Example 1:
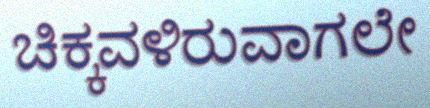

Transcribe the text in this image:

ಚಿಕ್ಕವಳಿರುವಾಗಲೇ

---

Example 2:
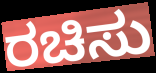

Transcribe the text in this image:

ರಚಿಸು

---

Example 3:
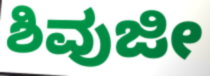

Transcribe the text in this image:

ಶಿವುಜೀ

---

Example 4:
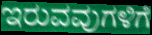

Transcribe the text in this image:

ಇರುವವುಗಳಿಗೆ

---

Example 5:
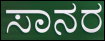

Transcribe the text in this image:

ಸಾನರ